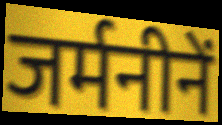
जर्मनीनें